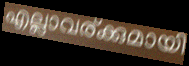
എല്ലാവര്ക്കുമായി